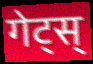
गेट्स्